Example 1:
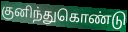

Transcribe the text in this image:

குனிந்துகொண்டு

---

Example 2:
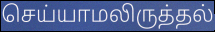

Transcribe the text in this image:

செய்யாமலிருத்தல்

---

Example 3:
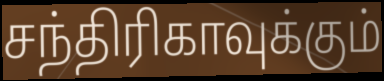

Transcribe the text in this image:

சந்திரிகாவுக்கும்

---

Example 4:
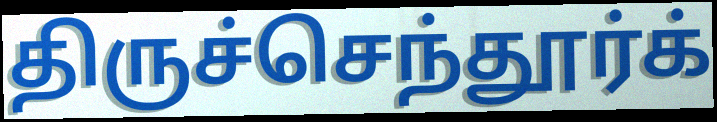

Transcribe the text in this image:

திருச்செந்தூர்க்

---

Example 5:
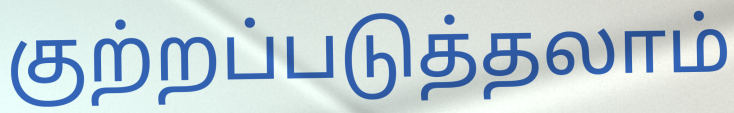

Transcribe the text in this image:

குற்றப்படுத்தலாம்